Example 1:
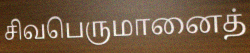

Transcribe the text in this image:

சிவபெருமானைத்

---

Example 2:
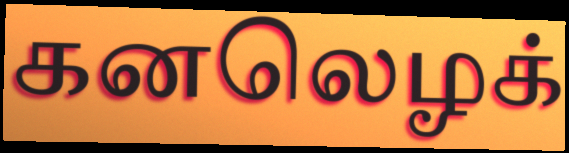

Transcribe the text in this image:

கனலெழக்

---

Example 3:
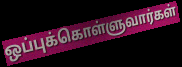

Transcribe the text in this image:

ஒப்புக்கொள்ளுவார்கள்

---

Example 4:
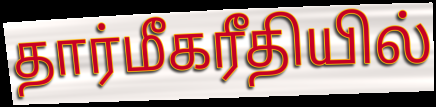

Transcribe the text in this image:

தார்மீகரீதியில்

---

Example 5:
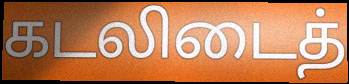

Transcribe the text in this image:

கடலிடைத்